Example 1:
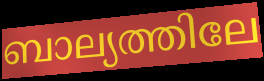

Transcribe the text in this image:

ബാല്യത്തിലേ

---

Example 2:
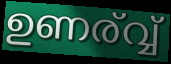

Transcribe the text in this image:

ഉണര്വ്വ്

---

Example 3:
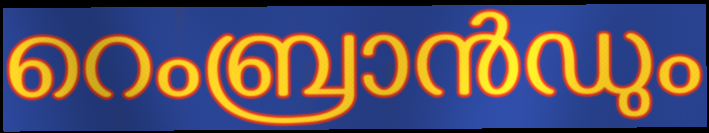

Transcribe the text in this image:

റെംബ്രാൻഡും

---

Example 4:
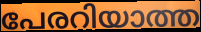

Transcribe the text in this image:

പേരറിയാത്ത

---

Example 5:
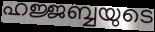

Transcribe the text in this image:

ഹജ്ജബ്ബയുടെ